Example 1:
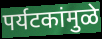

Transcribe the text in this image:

पर्यटकांमुळे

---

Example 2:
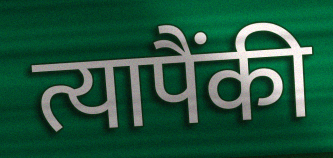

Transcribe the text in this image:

त्यापैंकी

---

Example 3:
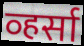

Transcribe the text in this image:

व्हर्सा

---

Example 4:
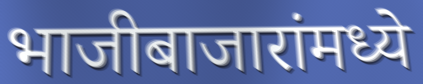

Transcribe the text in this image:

भाजीबाजारांमध्ये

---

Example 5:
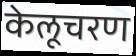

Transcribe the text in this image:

केलूचरण